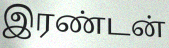
இரண்டன்